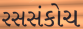
રસસંકોચ